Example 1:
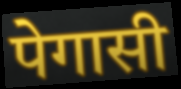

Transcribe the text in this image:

पेगासी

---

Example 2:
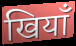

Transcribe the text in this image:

खियाँ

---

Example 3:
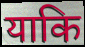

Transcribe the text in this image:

याकि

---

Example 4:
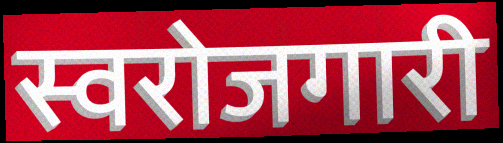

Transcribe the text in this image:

स्वरोजगारी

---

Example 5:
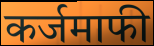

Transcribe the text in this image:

कर्जमाफी